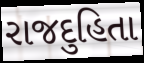
રાજદુહિતા